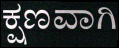
ಕ್ಷಣವಾಗಿ